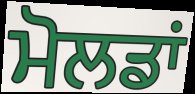
ਮੋਲਡਾਂ